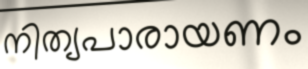
നിത്യപാരായണം